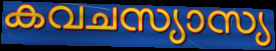
കവചസ്യാസ്യ